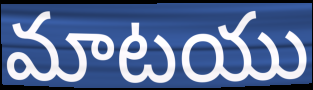
మాటయు